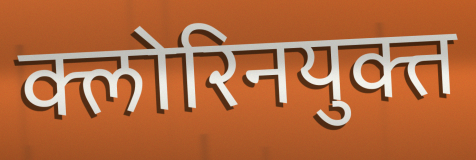
क्लोरिनयुक्त